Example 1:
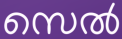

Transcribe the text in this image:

സെൽ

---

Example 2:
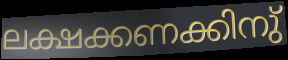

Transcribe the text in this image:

ലക്ഷക്കണക്കിനു്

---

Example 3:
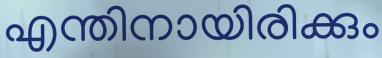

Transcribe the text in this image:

എന്തിനായിരിക്കും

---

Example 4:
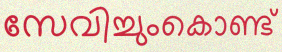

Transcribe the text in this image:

സേവിച്ചുംകൊണ്ട്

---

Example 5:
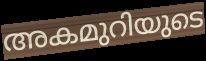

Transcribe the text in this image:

അകമുറിയുടെ